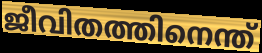
ജീവിതത്തിനെന്ത്